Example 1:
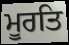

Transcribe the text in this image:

ਮੂਰਤਿ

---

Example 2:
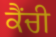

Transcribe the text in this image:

ਕੈਂਚੀ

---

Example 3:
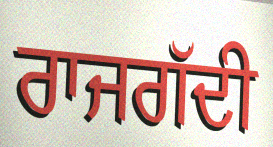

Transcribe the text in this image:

ਰਾਜਗੱਦੀ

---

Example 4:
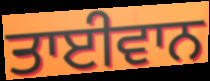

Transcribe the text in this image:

ਤਾਈਵਾਨ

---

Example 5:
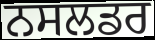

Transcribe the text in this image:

ਨਸਲਡਰ